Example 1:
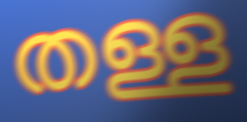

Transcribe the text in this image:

തള്ള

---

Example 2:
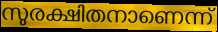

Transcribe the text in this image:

സുരക്ഷിതനാണെന്ന്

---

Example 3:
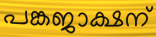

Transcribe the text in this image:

പങ്കജാക്ഷന്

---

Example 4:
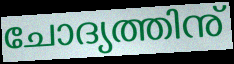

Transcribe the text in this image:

ചോദ്യത്തിനു്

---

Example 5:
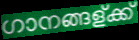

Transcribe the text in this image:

ഗാനങ്ങള്ക്ക്